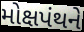
મોક્ષપંથને